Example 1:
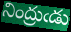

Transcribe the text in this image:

నింద్రుఁడు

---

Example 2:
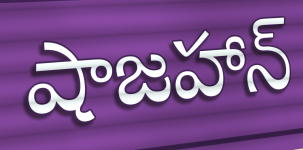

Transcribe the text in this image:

షాజహాన్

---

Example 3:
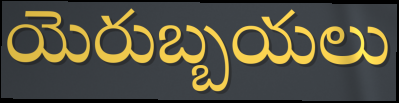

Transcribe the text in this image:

యెరుబ్బయలు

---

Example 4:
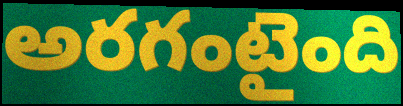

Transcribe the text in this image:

అరగంటైంది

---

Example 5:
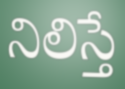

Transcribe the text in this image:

నిలిస్తే